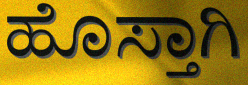
ಹೊಸ್ತಾಗಿ